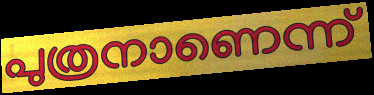
പുത്രനാണെന്ന്